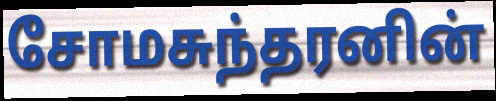
சோமசுந்தரனின்